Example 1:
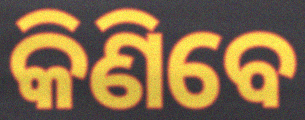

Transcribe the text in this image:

କିଣିବେ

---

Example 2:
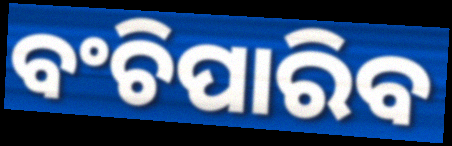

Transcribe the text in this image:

ବଂଚିପାରିବ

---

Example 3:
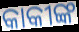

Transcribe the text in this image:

କାକୀଙ୍କ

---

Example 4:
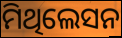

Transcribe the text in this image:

ମିଥିଲେସନ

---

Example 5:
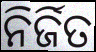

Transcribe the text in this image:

ନିର୍ଜିତ